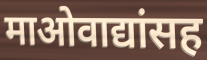
माओवाद्यांसह